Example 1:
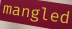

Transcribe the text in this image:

mangled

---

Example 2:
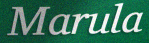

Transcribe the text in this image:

Marula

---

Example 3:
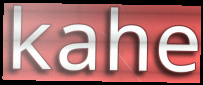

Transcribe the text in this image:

kahe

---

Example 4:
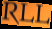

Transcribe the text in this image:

RLL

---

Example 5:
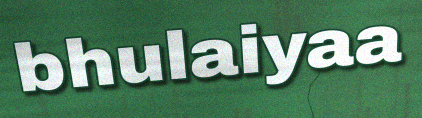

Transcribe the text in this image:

bhulaiyaa